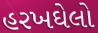
હરખઘેલો